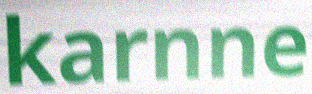
karnne